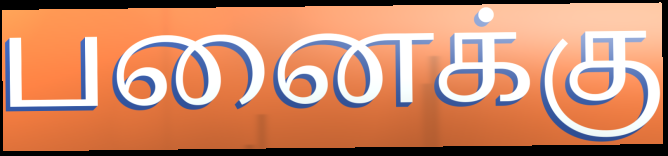
பனைக்கு